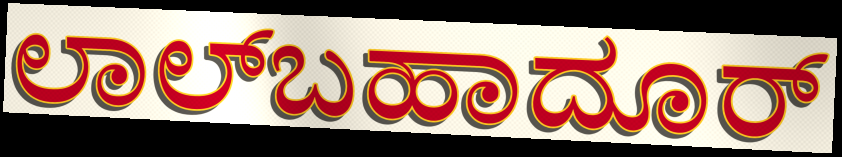
ಲಾಲ್‌ಬಹಾದೂರ್